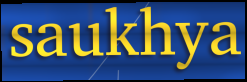
saukhya